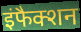
इंफैक्शन